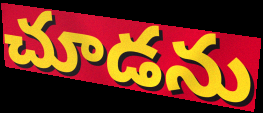
చూడను